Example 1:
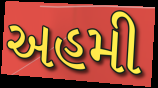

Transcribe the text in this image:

અહમી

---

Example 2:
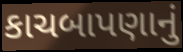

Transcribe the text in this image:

કાચબાપણાનું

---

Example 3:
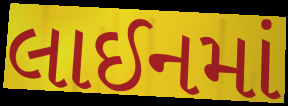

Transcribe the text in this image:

લાઈનમાં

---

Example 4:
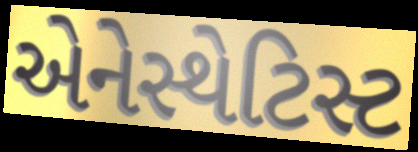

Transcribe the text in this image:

એનેસ્થેટિસ્ટ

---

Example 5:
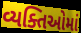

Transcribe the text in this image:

વ્યક્તિઓમાં